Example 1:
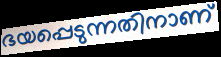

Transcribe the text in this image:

ഭയപ്പെടുന്നതിനാണ്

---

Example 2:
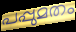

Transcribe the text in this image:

പപ്പുമതം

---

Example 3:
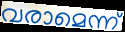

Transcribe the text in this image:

വരാമെന്ന്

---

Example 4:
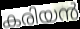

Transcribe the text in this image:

കരിയൻ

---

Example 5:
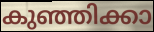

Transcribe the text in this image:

കുഞ്ഞിക്കാ